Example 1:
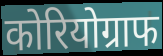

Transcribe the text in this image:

कोरियोग्राफ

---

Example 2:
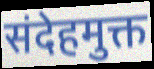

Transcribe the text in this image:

संदेहमुक्त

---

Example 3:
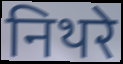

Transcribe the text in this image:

निथरे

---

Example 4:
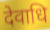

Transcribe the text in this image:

देवाधि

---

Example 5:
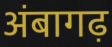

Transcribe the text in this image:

अंबागढ़